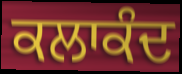
ਕਲਾਕੰਦ